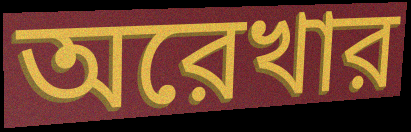
অরেখার